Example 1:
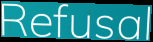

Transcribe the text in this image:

Refusal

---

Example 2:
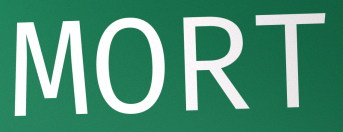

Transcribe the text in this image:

MORT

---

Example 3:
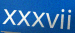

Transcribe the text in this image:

xxxvii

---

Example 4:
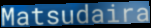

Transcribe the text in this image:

Matsudaira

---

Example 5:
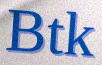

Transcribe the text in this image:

Btk